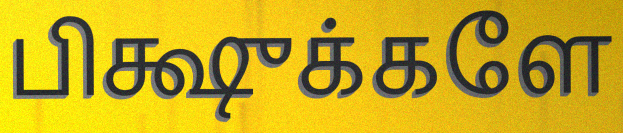
பிக்ஷுக்களே